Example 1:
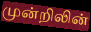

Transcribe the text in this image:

முன்றிலின்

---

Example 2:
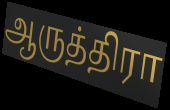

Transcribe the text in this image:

ஆருத்திரா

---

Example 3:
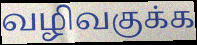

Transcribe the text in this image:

வழிவகுக்க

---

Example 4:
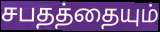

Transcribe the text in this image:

சபதத்தையும்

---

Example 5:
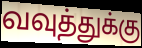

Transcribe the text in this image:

வவுத்துக்கு